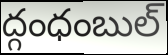
ద్గంధంబుల్